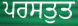
ਪਰਸਤੁਤ